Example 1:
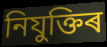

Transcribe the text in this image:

নিযুক্তিৰ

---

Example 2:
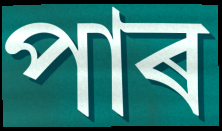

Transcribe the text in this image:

পাৰ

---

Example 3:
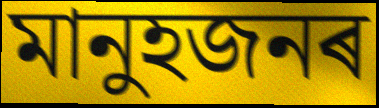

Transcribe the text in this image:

মানুহজনৰ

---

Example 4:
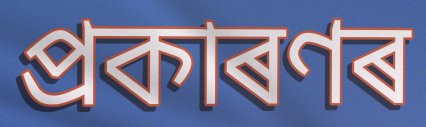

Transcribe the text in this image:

প্ৰকাৰণৰ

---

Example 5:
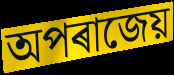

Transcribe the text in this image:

অপৰাজেয়